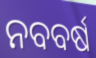
ନବବର୍ଷ